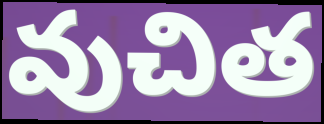
వుచిత